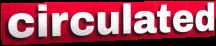
circulated